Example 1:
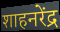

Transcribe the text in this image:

शाहनरेंद्र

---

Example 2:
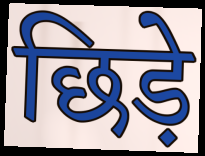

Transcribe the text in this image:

छिड़े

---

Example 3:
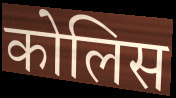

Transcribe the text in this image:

कोलिस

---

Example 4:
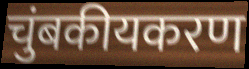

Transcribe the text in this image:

चुंबकीयकरण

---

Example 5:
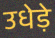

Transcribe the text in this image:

उधेड़े